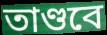
তাণ্ডবে